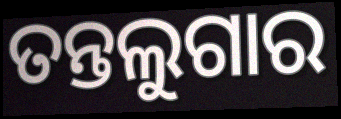
ତନ୍ତଲୁଗାର